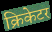
क्रिकेटर